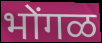
भोंगळ